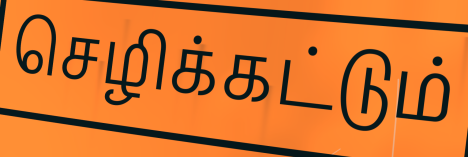
செழிக்கட்டும்